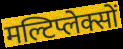
मल्टिप्लेक्सों